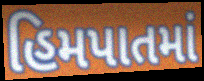
હિમપાતમાં